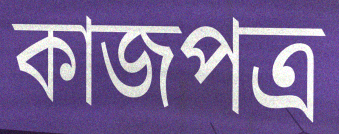
কাজপত্র